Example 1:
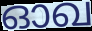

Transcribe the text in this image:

ഓഖ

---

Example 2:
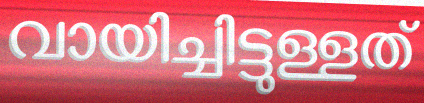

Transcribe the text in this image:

വായിച്ചിട്ടുള്ളത്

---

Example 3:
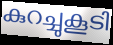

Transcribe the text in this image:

കുറച്ചുകൂടി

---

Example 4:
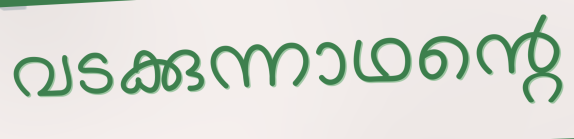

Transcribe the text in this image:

വടക്കുന്നാഥന്റെ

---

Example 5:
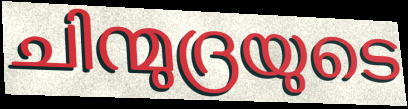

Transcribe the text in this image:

ചിന്മുദ്രയുടെ